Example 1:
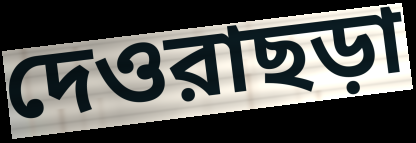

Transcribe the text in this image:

দেওরাছড়া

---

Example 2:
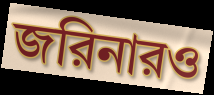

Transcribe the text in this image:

জরিনারও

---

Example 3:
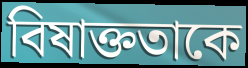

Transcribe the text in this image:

বিষাক্ততাকে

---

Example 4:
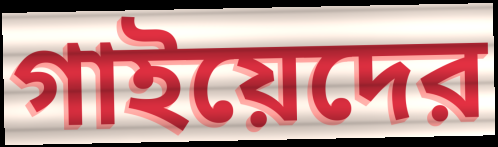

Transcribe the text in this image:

গাইয়েদের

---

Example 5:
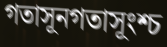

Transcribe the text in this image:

গতাসূনগতাসূংশ্চ